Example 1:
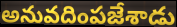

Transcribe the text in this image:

అనువదింపజేశాడు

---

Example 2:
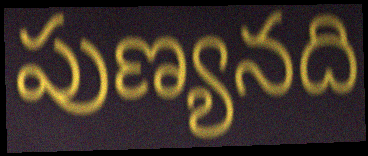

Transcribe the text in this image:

పుణ్యనది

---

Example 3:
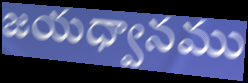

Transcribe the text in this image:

జయధ్వానము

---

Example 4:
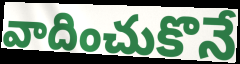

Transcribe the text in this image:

వాదించుకొనే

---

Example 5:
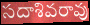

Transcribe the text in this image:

సదాశివరావు